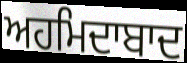
ਅਹਮਿਦਾਬਾਦ